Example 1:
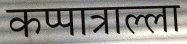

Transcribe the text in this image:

कप्पात्राल्ला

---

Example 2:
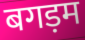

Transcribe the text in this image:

बगड़म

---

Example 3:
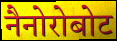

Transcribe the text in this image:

नैनोरोबोट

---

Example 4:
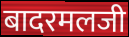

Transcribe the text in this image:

बादरमलजी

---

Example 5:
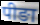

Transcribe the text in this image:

पीङा